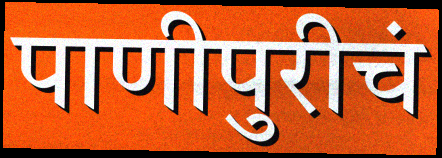
पाणीपुरीचं